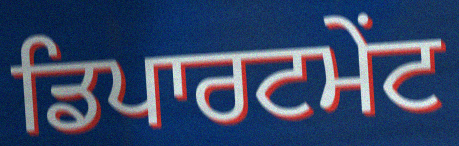
ਡਿਪਾਰਟਮੇਂਟ